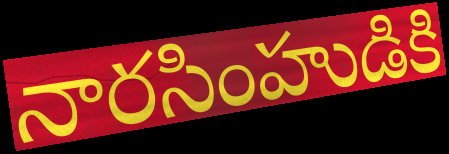
నారసింహుడికి